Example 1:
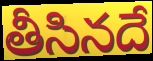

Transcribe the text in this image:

తీసినదే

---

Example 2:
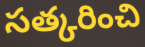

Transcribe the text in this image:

సత్కరించి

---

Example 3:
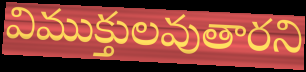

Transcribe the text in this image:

విముక్తులవుతారని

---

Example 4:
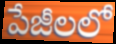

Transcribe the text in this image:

పేజీలలో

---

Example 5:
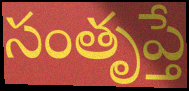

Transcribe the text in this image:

సంతృప్తే